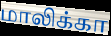
மாலிக்கா